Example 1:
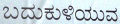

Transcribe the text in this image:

ಬದುಕುಳಿಯುವ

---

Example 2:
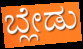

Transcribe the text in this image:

ಬ್ಲೇಡು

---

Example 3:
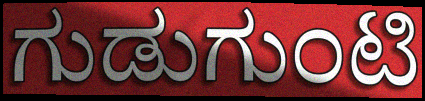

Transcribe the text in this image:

ಗುಡುಗುಂಟಿ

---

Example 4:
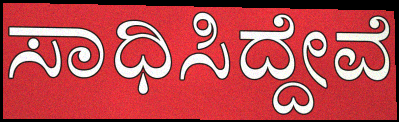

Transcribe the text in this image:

ಸಾಧಿಸಿದ್ದೇವೆ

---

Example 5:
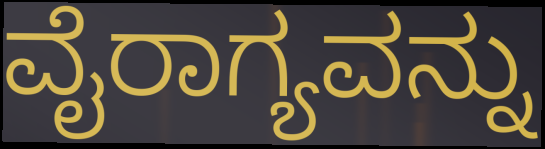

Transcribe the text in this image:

ವೈರಾಗ್ಯವನ್ನು